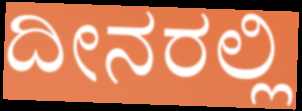
ದೀನರಲ್ಲಿ